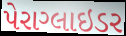
પેરાગ્લાઇડર